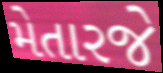
મેતારજે